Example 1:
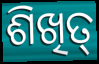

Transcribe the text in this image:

ଶିଖିତ୍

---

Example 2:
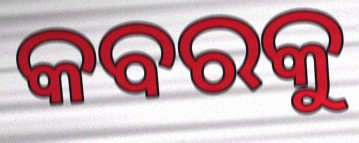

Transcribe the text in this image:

କବରକୁ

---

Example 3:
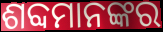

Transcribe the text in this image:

ଶବ୍ଦମାନଙ୍କର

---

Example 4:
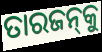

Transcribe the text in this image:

ତାରଜନ୍‌କୁ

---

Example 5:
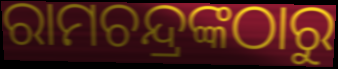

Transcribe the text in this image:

ରାମଚନ୍ଦ୍ରଙ୍କଠାରୁ